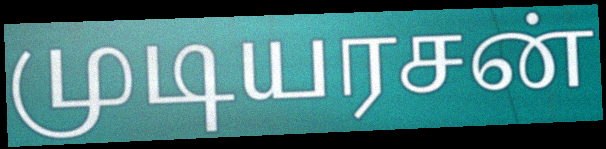
முடியரசன்